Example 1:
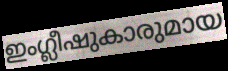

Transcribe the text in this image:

ഇംഗ്ലീഷുകാരുമായ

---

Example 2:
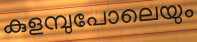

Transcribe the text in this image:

കുളമ്പുപോലെയും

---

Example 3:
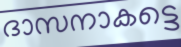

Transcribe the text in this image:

ദാസനാകട്ടെ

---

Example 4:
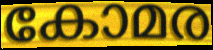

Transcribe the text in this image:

കോമര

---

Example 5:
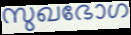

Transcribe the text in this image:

സുഖഭോഗ